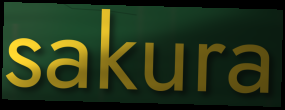
sakura